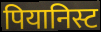
पियानिस्ट